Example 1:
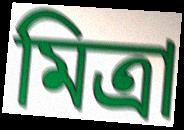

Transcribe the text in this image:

মিত্রা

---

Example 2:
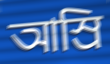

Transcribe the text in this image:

আস্রি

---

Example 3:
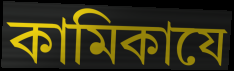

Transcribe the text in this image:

কামিকাযে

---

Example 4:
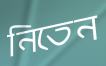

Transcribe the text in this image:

নিতেন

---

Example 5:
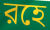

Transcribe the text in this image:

রহে